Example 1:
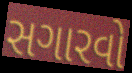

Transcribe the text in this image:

સગારવો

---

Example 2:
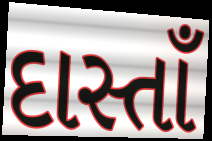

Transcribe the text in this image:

દાસ્તાઁ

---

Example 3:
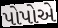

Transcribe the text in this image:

પોપોએ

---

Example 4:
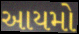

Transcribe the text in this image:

આયમો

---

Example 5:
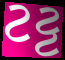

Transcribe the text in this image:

ટટ્ટ